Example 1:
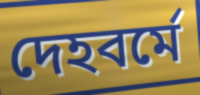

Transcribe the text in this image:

দেহবর্মে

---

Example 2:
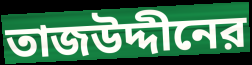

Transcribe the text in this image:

তাজউদ্দীনের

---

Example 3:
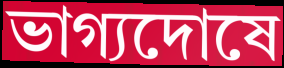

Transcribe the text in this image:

ভাগ্যদোষে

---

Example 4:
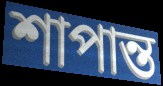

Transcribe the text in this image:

শাপান্ত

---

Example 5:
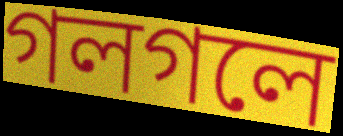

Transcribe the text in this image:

গলগলে